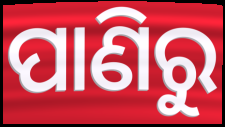
ପାଣିରୁ